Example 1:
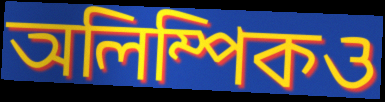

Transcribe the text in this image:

অলিম্পিকও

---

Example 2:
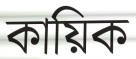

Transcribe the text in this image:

কায়িক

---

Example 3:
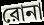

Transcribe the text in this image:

রোনা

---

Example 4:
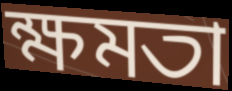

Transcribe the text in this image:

ক্ষমতা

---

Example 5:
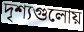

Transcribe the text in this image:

দৃশ্যগুলোয়